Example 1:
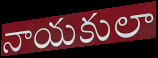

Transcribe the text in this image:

నాయకులా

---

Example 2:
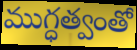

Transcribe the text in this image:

ముగ్ధత్వంతో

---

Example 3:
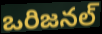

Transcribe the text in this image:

ఒరిజనల్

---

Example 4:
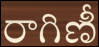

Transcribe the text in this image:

రాగిణీ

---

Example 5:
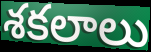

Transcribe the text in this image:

శకలాలు